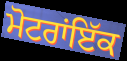
ਮੋਟਰਾਂਇੱਕ